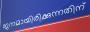
ജനമായിരിക്കുന്നതിന്